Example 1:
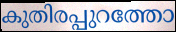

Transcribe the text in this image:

കുതിരപ്പുറത്തോ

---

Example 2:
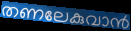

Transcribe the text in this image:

തണലേകുവാൻ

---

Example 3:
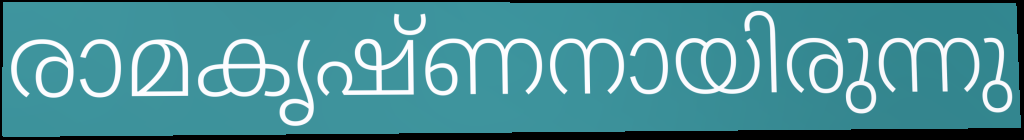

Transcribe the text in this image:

രാമകൃഷ്ണനായിരുന്നു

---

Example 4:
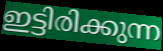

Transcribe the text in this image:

ഇട്ടിരിക്കുന്ന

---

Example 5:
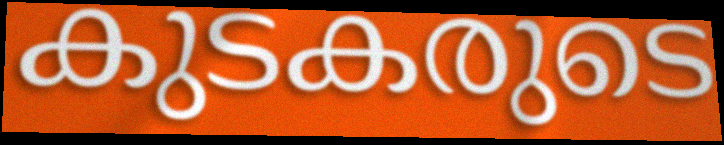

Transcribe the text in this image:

കുടകരുടെ